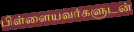
பிள்ளையவர்களுடன்